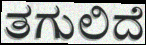
ತಗುಲಿದೆ